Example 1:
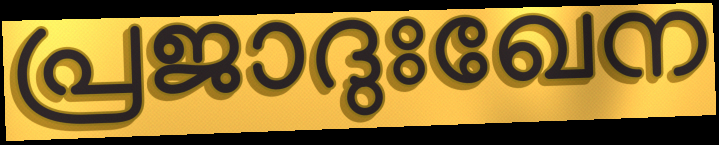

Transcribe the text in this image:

പ്രജാദുഃഖേന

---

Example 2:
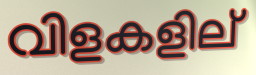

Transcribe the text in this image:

വിളകളില്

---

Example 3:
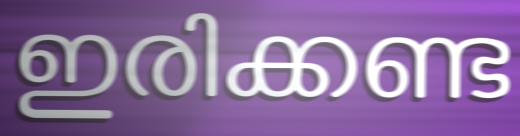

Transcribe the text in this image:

ഇരിക്കണ്ട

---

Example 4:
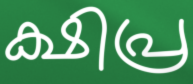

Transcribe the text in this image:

ക്ഷിപ്ര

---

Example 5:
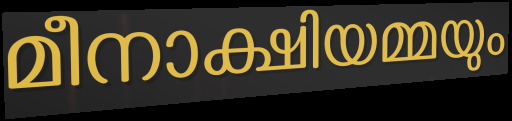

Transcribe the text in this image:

മീനാക്ഷിയമ്മയും